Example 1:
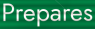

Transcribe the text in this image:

Prepares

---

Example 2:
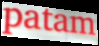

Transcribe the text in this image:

patam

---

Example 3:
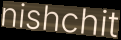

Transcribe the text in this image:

nishchit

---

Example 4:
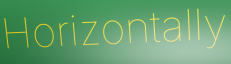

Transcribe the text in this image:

Horizontally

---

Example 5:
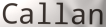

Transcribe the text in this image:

Callan